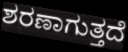
ಶರಣಾಗುತ್ತದೆ